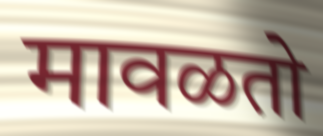
मावळतो